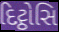
દિટ્ઠોસિ